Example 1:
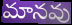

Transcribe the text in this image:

మానవు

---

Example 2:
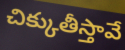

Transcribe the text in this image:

చిక్కుతీస్తావే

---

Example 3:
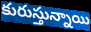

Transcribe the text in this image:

కురుస్తున్నాయి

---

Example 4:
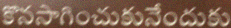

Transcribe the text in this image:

కొనసాగించుకునేందుకు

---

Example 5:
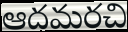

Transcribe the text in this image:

ఆదమరచి